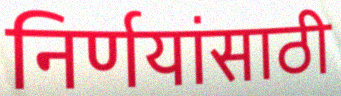
निर्णयांसाठी